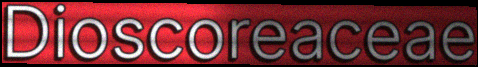
Dioscoreaceae